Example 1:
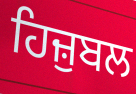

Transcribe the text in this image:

ਹਿਜ਼ੁਬਲ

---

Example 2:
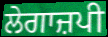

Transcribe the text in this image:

ਲੇਗਾਜ਼ਪੀ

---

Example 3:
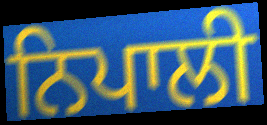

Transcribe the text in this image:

ਨਿਪਾਲੀ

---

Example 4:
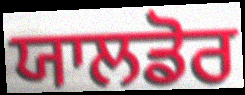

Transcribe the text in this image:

ਯਾਲਡੋਰ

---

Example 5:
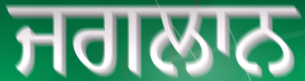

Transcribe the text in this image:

ਜਗਲਾਨ